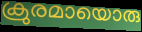
ക്രുരമായൊരു